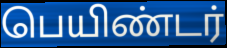
பெயிண்டர்